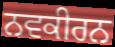
ਨਵਕੀਰਨ